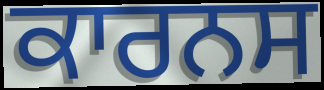
ਕਾਰਨਸ